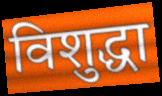
विशुद्धा